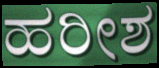
ಹರೀಶ